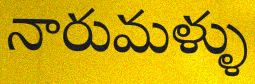
నారుమళ్ళు